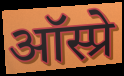
ऑस्प्रे